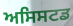
ਅਸਿਸਟਡ